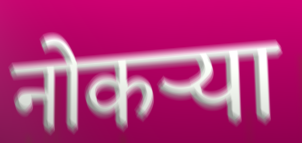
नोकऱ्या